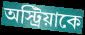
অস্ট্রিয়াকে